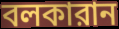
বলকারান